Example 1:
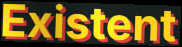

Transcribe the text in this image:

Existent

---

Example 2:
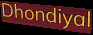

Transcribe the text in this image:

Dhondiyal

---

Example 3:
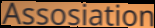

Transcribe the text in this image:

Assosiation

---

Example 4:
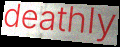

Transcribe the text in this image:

deathly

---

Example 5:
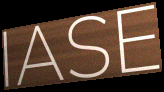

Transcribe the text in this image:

IASE